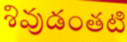
శివుడంతటి